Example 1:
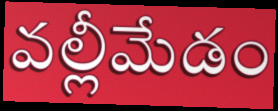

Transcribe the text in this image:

వల్లీమేడం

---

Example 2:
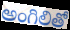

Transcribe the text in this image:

అంగిలితో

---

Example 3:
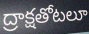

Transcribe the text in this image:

ద్రాక్షతోటలూ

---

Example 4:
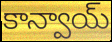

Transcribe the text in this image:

కాన్వాయ్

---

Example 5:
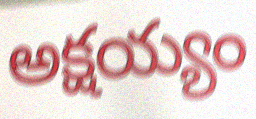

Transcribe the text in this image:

అక్షయ్యం